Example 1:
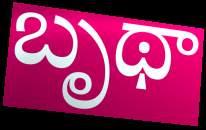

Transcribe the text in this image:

బృథా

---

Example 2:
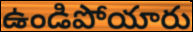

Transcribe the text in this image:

ఉండిపోయారు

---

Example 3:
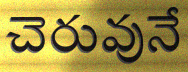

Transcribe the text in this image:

చెరువునే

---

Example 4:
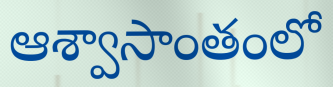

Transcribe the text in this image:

ఆశ్వాసాంతంలో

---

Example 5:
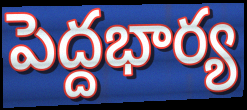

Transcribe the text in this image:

పెద్దభార్య